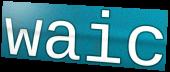
waic